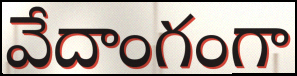
వేదాంగంగా